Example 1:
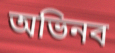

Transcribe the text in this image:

অভিনব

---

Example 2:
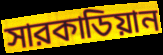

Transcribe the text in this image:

সারকাডিয়ান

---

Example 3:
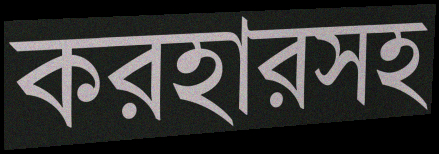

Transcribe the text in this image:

করহারসহ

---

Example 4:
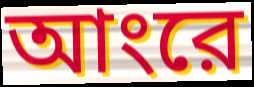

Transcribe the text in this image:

আংরে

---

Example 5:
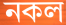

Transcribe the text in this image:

নকল